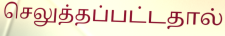
செலுத்தப்பட்டதால்